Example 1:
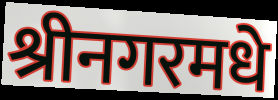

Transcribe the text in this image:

श्रीनगरमधे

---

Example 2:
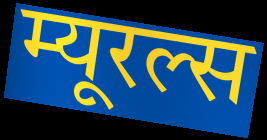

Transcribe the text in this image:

म्यूरल्स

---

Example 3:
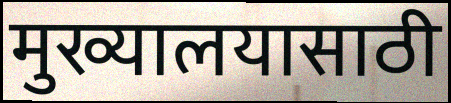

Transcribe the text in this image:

मुख्यालयासाठी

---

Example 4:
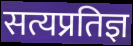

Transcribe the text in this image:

सत्यप्रतिज्ञ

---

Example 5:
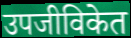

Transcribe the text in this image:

उपजीविकेत